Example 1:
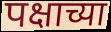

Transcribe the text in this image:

पक्षाच्या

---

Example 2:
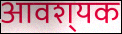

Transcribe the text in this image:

आवश्यक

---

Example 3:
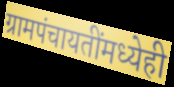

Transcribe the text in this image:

ग्रामपंचायतींमध्येही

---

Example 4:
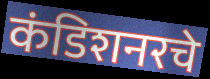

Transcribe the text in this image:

कंडिशनरचे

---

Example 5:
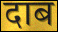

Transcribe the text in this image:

दाब